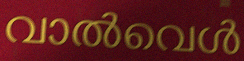
വാൽവെൾ